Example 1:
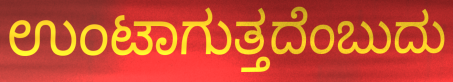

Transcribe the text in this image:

ಉಂಟಾಗುತ್ತದೆಂಬುದು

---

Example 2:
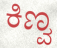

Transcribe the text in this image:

ಕಿಣ್ವ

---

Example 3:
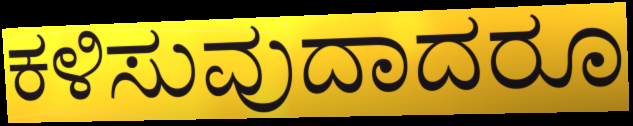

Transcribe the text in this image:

ಕಳಿಸುವುದಾದರೂ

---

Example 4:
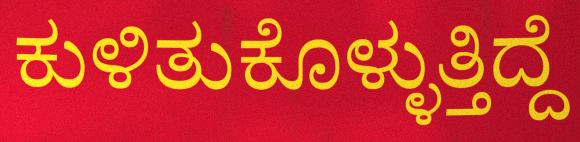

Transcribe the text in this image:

ಕುಳಿತುಕೊಳ್ಳುತ್ತಿದ್ದೆ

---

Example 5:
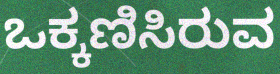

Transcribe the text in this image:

ಒಕ್ಕಣಿಸಿರುವ